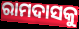
ରାମଦାସକୁ